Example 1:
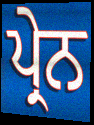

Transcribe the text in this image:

ਪ੍ਰੇਨ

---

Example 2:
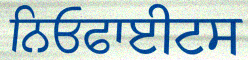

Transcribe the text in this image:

ਨਿਓਫਾਈਟਸ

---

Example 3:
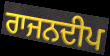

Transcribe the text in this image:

ਰਾਜਨਦੀਪ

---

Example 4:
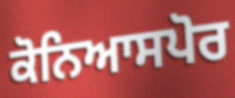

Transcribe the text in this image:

ਕੋਨਿਆਸਪੋਰ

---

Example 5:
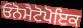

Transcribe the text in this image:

ਓਨੋਮੈਟੋਪੋਇਕ